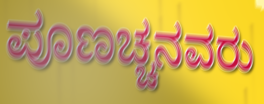
ಪೂಣಚ್ಚನವರು